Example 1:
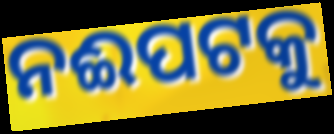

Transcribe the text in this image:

ନଈପଟକୁ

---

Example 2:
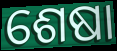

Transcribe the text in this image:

ଶେଷା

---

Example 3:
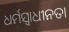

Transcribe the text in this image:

ଧର୍ମସ୍ୱାଧୀନତା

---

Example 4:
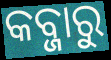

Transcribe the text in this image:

କବ୍ଜାରୁ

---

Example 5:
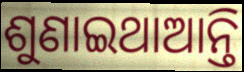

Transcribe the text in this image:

ଶୁଣାଇଥାଆନ୍ତି